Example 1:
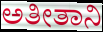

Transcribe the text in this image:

ಅತೀತಾನಿ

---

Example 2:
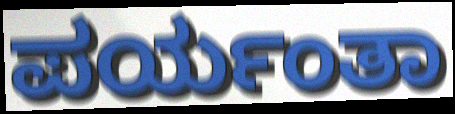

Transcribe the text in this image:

ಪರ್ಯಂತಾ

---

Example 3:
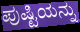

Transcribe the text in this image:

ಪುಷ್ಟಿಯನ್ನು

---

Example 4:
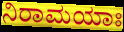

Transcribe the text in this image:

ನಿರಾಮಯಾಃ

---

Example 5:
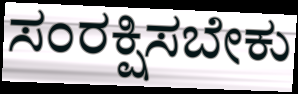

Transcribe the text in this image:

ಸಂರಕ್ಷಿಸಬೇಕು